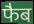
फैब